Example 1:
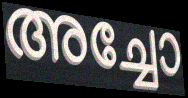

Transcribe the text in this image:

അച്ചോ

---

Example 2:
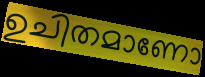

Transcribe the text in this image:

ഉചിതമാണോ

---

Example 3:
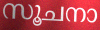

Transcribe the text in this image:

സൂചനാ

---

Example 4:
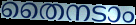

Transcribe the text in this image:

തൈനടാം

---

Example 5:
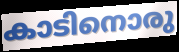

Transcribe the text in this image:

കാടിനൊരു